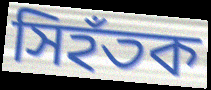
সিহঁতক